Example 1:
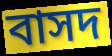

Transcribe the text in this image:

বাসদ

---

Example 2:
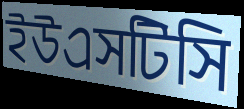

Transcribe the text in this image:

ইউএসটিসি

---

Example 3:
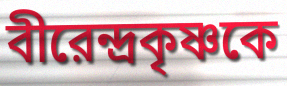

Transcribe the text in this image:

বীরেন্দ্রকৃষ্ণকে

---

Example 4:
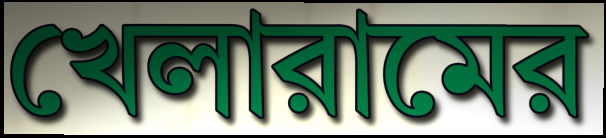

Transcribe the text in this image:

খেলারামের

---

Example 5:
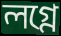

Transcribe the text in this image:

লগ্নে